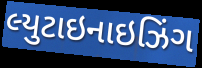
લ્યુટાઇનાઇઝિંગ